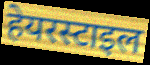
हेयरस्टाइल